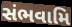
સંભવામિ